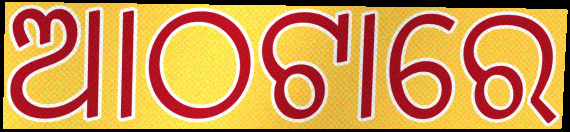
ଆଠଟାରେ